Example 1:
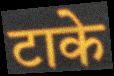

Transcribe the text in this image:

टाके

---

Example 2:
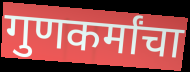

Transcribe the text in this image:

गुणकर्मांचा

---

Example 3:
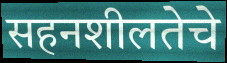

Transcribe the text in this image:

सहनशीलतेचे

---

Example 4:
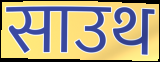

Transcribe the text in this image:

साउथ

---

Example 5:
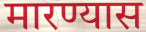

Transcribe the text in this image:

मारण्यास